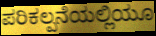
ಪರಿಕಲ್ಪನೆಯಲ್ಲಿಯೂ